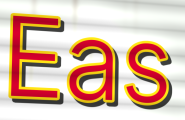
Eas